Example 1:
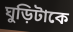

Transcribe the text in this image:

ঘুড়িটাকে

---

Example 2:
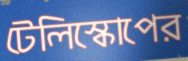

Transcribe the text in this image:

টেলিস্কোপের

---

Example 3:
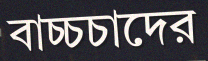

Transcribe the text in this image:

বাচ্চচাদের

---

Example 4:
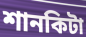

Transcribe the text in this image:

শানকিটা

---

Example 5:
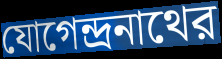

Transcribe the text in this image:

যোগেন্দ্রনাথের